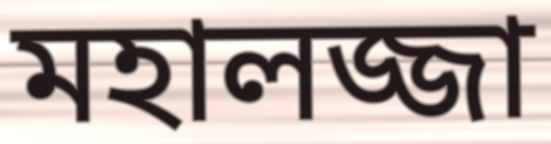
মহালজ্জা